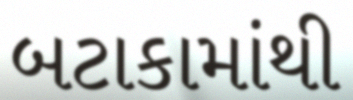
બટાકામાંથી